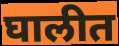
घालीत